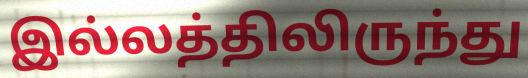
இல்லத்திலிருந்து